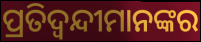
ପ୍ରତିଦ୍ୱନ୍ଦୀମାନଙ୍କର